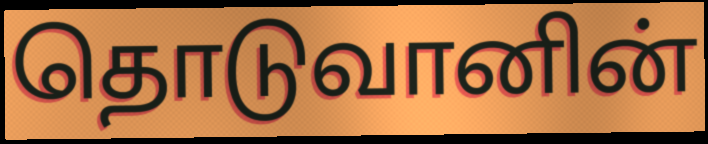
தொடுவானின்